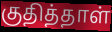
குதித்தாள்